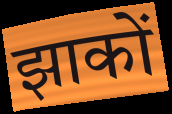
झाकों